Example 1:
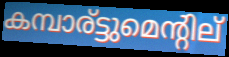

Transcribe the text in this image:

കമ്പാര്ട്ടുമെന്റില്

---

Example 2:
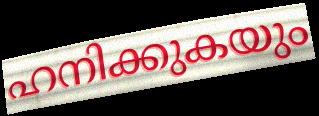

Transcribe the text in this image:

ഹനിക്കുകയും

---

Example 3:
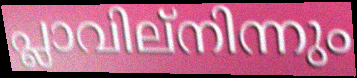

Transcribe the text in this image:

പ്ലാവില്നിന്നും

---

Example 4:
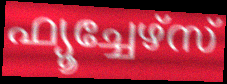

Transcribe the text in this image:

ഫ്യൂച്ചേഴ്സ്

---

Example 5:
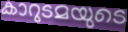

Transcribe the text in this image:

കാറുടമയുടെ